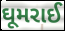
ઘૂમરાઈ